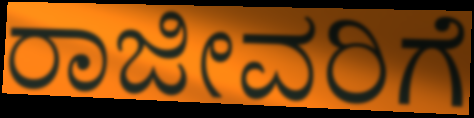
ರಾಜೀವರಿಗೆ